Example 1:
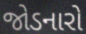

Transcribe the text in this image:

જોડનારો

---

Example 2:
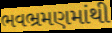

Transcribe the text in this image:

ભવભ્રમણમાંથી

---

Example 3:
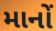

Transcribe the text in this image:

માનોં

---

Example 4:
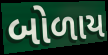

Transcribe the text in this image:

બોળાય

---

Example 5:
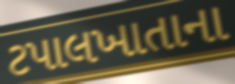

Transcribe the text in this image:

ટપાલખાતાના